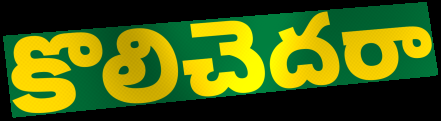
కొలిచెదరా